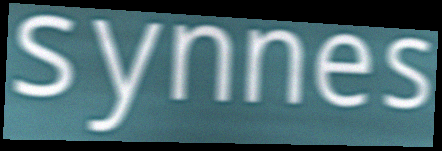
synnes